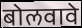
बोलवावे